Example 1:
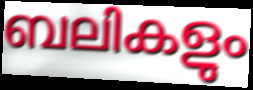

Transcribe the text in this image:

ബലികളും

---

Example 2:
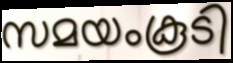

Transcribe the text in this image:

സമയംകൂടി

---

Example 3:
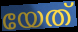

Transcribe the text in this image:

യേത്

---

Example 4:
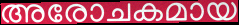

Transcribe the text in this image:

അരോചകമായ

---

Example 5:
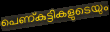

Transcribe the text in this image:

പെണ്കുട്ടികളുടെയും